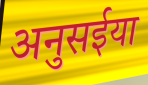
अनुसईया